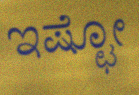
ಇಷ್ಟೋ